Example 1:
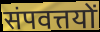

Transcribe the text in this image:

संपवत्तयों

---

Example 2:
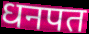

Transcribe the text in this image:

धनपत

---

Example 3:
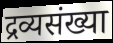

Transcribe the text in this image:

द्रव्यसंख्या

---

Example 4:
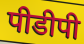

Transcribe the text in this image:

पीडीपी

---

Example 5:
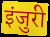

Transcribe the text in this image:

इंजुरी